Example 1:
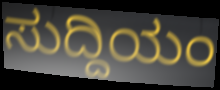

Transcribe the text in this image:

ಸುದ್ದಿಯಂ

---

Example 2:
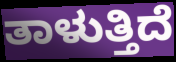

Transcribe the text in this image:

ತಾಳುತ್ತಿದೆ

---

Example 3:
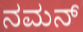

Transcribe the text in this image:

ನಮನ್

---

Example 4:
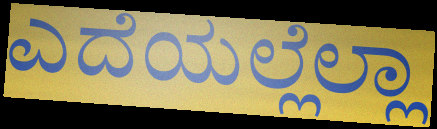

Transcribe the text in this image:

ಎದೆಯಲ್ಲೆಲ್ಲಾ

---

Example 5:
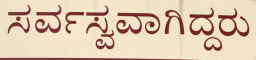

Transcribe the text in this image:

ಸರ್ವಸ್ವವಾಗಿದ್ದರು